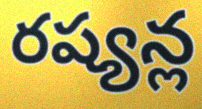
రష్యన్ల